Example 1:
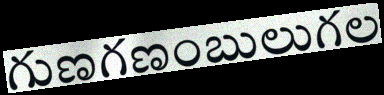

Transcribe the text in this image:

గుణగణంబులుగల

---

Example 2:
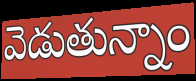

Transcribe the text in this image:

వెడుతున్నాం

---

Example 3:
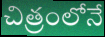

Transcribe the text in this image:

చిత్రంలోనే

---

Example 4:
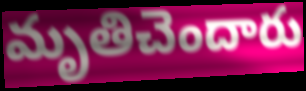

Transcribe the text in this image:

మృతిచెందారు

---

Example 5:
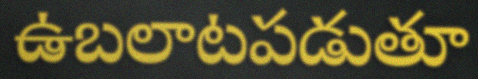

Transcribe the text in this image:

ఉబలాటపడుతూ